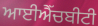
ਆਈਐੱਚਬੀਟੀ